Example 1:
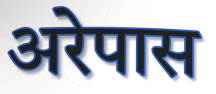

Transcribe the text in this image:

अरेपास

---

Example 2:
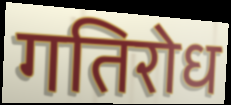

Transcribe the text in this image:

गतिरोध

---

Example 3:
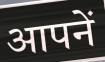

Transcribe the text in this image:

आपनें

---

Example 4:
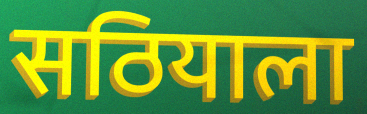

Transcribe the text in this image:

सठियाला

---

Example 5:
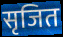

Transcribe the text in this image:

सृजित